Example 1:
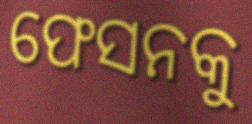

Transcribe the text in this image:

ଫେସନକୁ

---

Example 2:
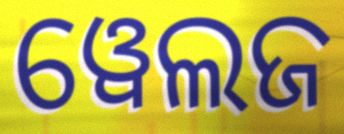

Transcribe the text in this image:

ୱେଲଜ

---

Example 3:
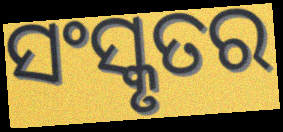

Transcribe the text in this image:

ସଂସ୍କୃତର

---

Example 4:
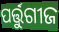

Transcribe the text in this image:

ପର୍ତ୍ତୁଗୀଜ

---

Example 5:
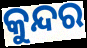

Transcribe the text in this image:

କୁନ୍ଦର